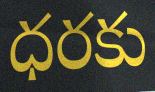
ధరకు